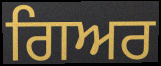
ਗਿਅਰ